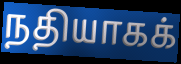
நதியாகக்